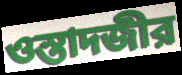
ওস্তাদজীর